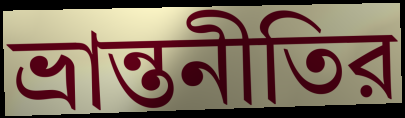
ভ্রান্তনীতির